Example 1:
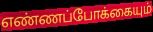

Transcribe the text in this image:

எண்ணப்போக்கையும்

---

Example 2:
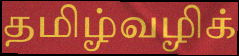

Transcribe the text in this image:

தமிழ்வழிக்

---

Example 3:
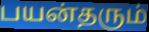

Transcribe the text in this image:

பயன்தரும்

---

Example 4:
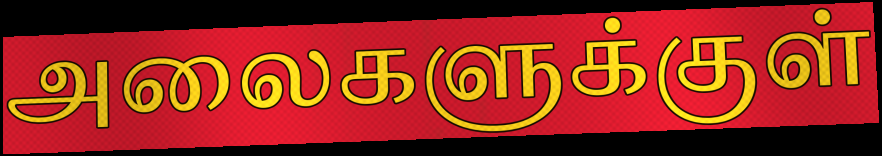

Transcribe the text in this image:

அலைகளுக்குள்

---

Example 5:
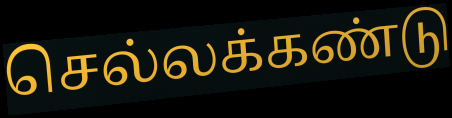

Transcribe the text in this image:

செல்லக்கண்டு